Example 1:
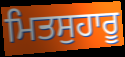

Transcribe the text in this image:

ਮਿਤਸੁਹਾਰੂ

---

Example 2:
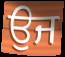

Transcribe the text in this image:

ਉਜ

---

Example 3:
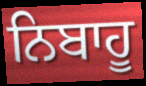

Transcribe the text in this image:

ਨਿਬਾਹੂ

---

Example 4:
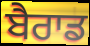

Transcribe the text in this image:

ਬੈਰਾਡ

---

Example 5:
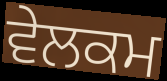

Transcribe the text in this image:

ਵੇਲਕਮ